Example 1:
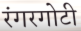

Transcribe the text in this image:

रंगरगोटी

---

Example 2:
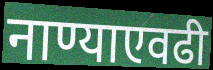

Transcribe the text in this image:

नाण्याएवढी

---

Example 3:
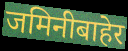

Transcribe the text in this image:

जमिनीबाहेर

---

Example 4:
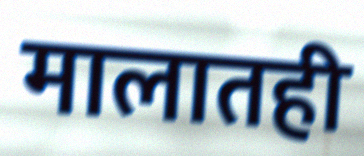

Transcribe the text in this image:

मालातही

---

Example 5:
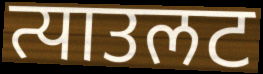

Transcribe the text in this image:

त्याउलट